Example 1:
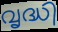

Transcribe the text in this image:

വൃദ്ധി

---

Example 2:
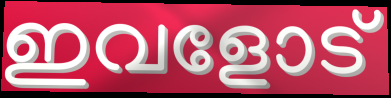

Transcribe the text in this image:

ഇവളോട്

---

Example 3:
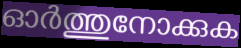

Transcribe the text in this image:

ഓർത്തുനോക്കുക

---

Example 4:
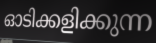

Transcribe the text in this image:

ഓടിക്കളിക്കുന്ന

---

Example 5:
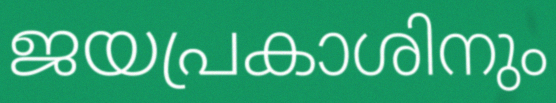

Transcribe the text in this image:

ജയപ്രകാശിനും